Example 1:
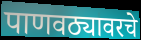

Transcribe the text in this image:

पाणवठ्यावरचे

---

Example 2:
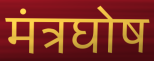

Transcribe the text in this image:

मंत्रघोष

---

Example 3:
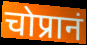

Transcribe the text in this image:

चोप्रानं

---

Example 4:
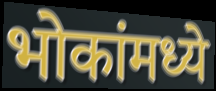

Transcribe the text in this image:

भोकांमध्ये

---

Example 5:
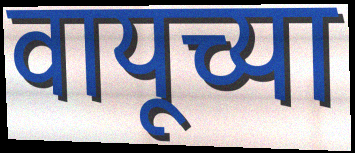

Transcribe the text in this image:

वायूच्या